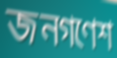
জনগণেশ